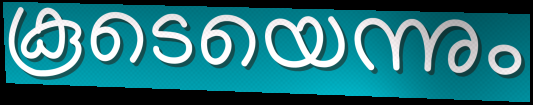
കൂടെയെന്നും